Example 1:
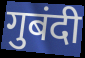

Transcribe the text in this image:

गुबंदी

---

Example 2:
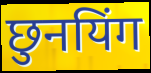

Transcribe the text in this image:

छुनयिंग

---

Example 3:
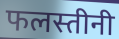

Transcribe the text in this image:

फलस्तीनी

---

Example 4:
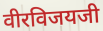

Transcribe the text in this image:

वीरविजयजी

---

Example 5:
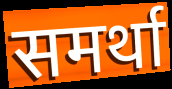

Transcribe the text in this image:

समर्था